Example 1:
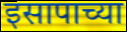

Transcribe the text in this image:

इसापाच्या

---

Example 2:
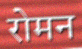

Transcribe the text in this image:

रोमन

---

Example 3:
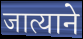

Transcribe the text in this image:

जात्याने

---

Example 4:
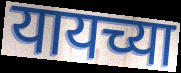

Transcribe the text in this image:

यायच्या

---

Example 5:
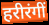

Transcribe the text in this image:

हरीरंगीं